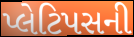
પ્લેટિપસની